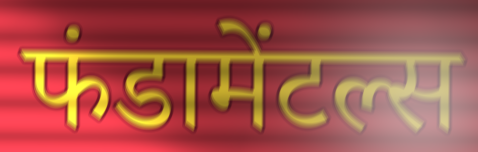
फंडामेंटल्स